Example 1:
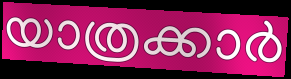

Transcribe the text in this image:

യാത്രക്കാർ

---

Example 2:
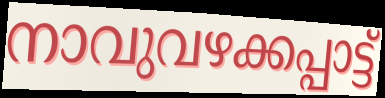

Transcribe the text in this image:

നാവുവഴക്കപ്പാട്ട്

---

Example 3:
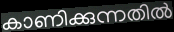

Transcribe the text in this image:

കാണിക്കുന്നതിൽ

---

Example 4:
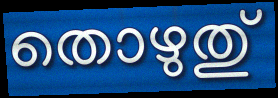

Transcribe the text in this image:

തൊഴുതു്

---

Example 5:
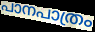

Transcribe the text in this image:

പാനപാത്രം